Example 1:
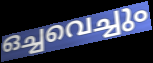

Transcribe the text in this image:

ഒച്ചവെച്ചും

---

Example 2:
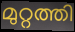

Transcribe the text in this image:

മുറ്റത്തി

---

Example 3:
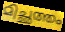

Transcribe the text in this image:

മിച്ഛത്തം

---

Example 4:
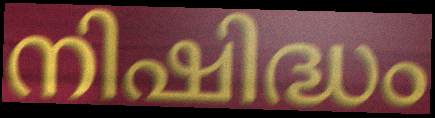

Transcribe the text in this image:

നിഷിദ്ധം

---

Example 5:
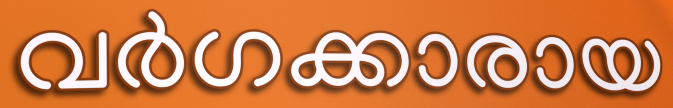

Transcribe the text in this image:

വർഗക്കാരായ